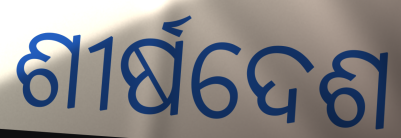
ଶୀର୍ଷଦେଶ